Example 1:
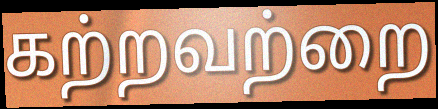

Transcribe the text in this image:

கற்றவற்றை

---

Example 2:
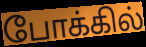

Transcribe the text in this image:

போக்கில்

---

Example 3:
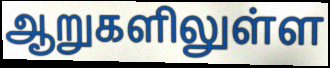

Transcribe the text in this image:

ஆறுகளிலுள்ள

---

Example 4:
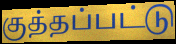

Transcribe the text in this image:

குத்தப்பட்டு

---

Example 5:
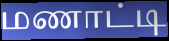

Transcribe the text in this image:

மணாட்டி